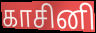
காசினி